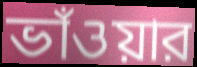
ভাঁওয়ার